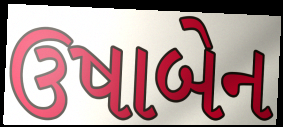
ઉષાબેન